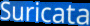
Suricata